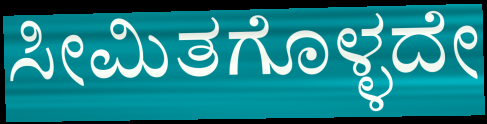
ಸೀಮಿತಗೊಳ್ಳದೇ